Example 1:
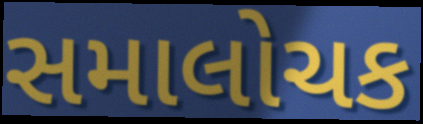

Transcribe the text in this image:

સમાલોચક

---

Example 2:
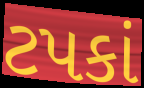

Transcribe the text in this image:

ટપકાં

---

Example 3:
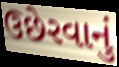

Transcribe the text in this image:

ઉછેરવાનું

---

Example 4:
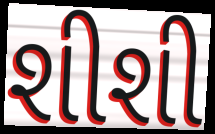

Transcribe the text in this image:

શીશી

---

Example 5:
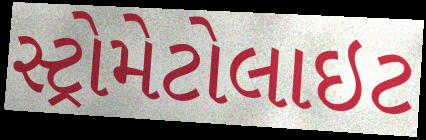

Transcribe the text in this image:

સ્ટ્રોમેટોલાઇટ